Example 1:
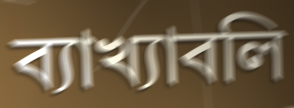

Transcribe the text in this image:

ব্যাখ্যাবলি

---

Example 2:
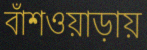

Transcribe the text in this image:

বাঁশওয়াড়ায়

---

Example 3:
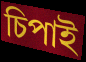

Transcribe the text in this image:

চিপাই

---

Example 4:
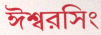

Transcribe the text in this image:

ঈশ্বরসিং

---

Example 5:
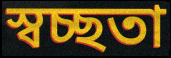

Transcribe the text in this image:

স্বচ্ছতা